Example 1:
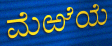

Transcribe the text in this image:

ಮೆಱೆಯೆ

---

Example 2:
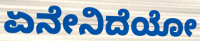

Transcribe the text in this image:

ಏನೇನಿದೆಯೋ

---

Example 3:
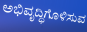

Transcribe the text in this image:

ಅಭಿವೃದ್ಧಿಗೊಳಿಸುವ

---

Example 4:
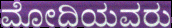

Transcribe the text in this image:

ಮೋದಿಯವರು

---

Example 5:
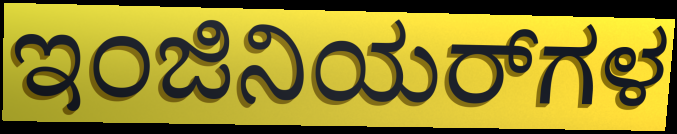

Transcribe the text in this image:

ಇಂಜಿನಿಯರ್‌ಗಳ